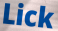
Lick